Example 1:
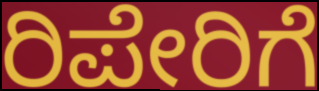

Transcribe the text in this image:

ರಿಪೇರಿಗೆ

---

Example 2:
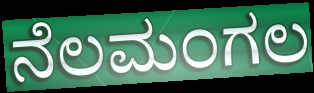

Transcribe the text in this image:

ನೆಲಮಂಗಲ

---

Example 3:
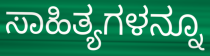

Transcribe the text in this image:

ಸಾಹಿತ್ಯಗಳನ್ನೂ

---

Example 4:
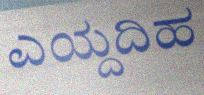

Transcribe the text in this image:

ಎಯ್ದದಿಹ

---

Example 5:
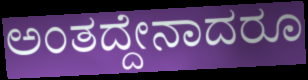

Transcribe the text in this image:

ಅಂತದ್ದೇನಾದರೂ